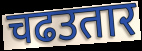
चढउतार